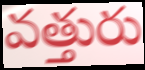
వత్తురు